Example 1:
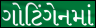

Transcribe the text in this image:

ગોટિંગેનમાં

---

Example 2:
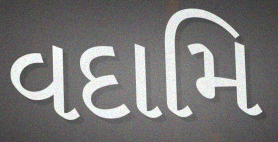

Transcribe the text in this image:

વદામિ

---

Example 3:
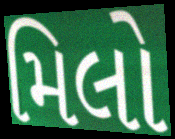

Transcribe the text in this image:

મિલો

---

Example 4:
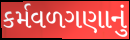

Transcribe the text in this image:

કર્મવળગણાનું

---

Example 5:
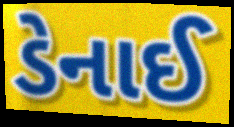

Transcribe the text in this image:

ડેનાઈ